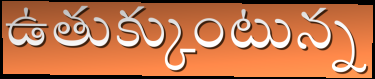
ఉతుక్కుంటున్న